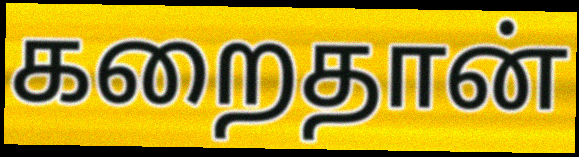
கறைதான்